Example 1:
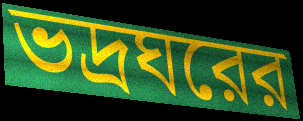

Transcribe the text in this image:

ভদ্রঘরের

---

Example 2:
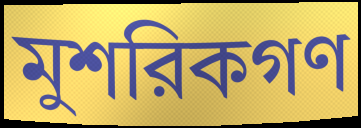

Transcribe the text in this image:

মুশরিকগণ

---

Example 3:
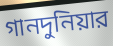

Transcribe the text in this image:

গানদুনিয়ার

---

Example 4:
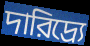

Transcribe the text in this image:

দারিদ্র্যে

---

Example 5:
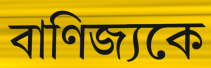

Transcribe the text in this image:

বাণিজ্যকে